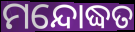
ମନ୍ଦୋଦ୍ଧତ